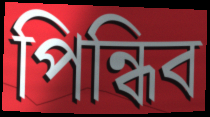
পিন্ধিব